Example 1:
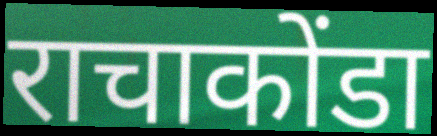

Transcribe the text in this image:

राचाकोंडा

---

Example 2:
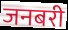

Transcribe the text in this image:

जनबरी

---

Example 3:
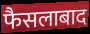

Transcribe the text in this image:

फैसलाबाद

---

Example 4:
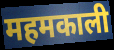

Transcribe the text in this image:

महमकाली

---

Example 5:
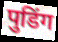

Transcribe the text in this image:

पुडिंग